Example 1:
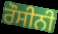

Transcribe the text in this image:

ਰੌਸੀਨੀ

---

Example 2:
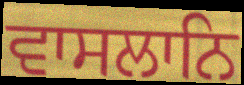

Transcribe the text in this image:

ਵਾਸਲਾਨਿ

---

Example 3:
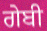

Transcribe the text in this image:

ਗੇਬੀ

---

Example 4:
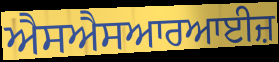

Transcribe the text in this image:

ਐਸਐਸਆਰਆਈਜ਼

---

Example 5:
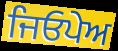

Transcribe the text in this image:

ਜਿਓਪੇਅ